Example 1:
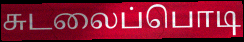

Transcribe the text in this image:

சுடலைப்பொடி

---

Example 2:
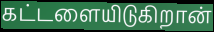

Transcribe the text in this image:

கட்டளையிடுகிறான்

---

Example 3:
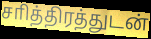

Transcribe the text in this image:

சரித்திரத்துடன்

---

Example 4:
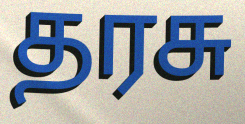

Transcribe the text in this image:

தரசு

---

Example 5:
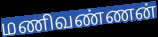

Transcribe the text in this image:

மணிவண்ணன்